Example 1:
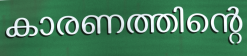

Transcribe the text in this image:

കാരണത്തിന്റെ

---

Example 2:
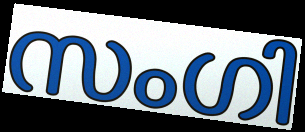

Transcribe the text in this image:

സംഗി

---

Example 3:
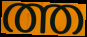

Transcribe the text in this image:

ത്ത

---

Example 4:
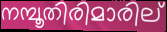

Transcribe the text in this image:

നമ്പൂതിരിമാരില്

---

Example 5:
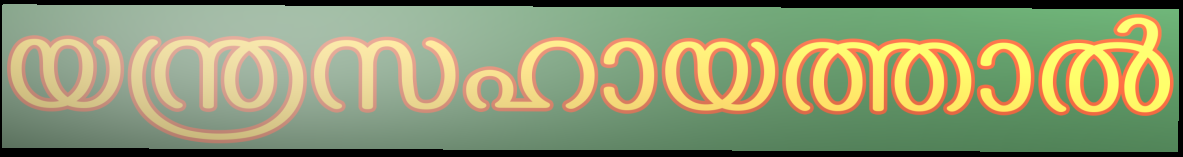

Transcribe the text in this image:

യന്ത്രസഹായത്താൽ